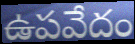
ఉపవేదం